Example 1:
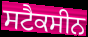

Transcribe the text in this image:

ਸਟੈਕਸੀਨ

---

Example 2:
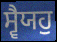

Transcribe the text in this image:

ਸ੍ਵੈਯਹੁ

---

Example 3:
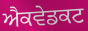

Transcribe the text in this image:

ਐਕਵੇਡਕਟ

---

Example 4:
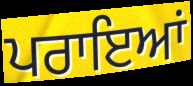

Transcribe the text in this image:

ਪਰਾਇਆਂ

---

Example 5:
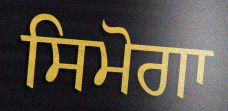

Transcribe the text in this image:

ਸਿਮੋਗਾ